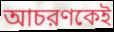
আচরণকেই